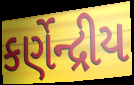
કર્ણેન્દ્રીય